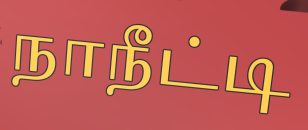
நாநீட்டி